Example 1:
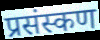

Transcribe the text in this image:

प्रसंस्कण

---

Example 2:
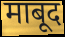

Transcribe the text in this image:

माबूद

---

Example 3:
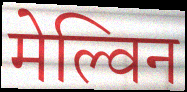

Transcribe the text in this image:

मेल्विन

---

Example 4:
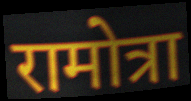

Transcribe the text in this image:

रामोत्रा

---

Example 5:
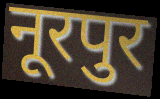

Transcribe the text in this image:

नूरपुर